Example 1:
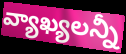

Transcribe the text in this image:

వ్యాఖ్యలన్నీ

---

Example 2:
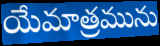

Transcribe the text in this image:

యేమాత్రమును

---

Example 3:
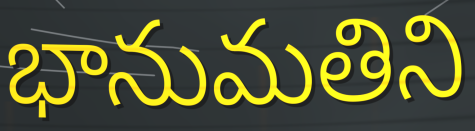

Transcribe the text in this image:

భానుమతిని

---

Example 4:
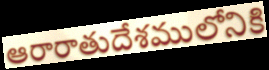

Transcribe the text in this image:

ఆరారాతుదేశములోనికి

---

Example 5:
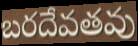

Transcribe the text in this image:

బరదేవతవు